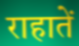
राहातें